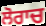
ਲੋਰਾਚ